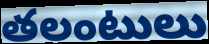
తలంటులు